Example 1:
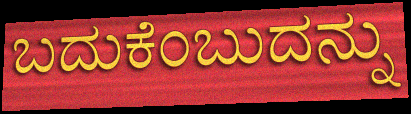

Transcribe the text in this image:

ಬದುಕೆಂಬುದನ್ನು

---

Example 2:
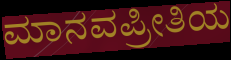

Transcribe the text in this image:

ಮಾನವಪ್ರೀತಿಯ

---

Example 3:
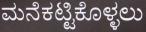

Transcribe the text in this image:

ಮನೆಕಟ್ಟಿಕೊಳ್ಳಲು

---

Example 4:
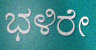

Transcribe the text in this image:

ಭಳಿರೇ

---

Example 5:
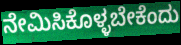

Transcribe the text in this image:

ನೇಮಿಸಿಕೊಳ್ಳಬೇಕೆಂದು